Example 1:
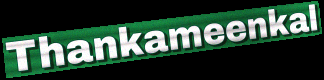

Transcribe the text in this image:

Thankameenkal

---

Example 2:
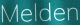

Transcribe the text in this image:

Melden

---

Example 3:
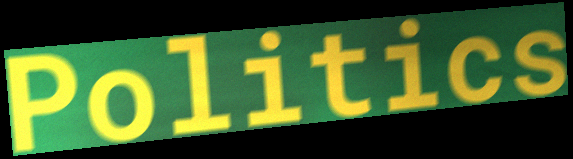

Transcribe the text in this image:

Politics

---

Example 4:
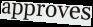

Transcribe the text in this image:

approves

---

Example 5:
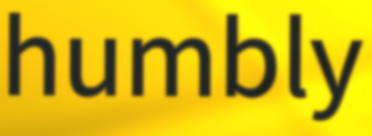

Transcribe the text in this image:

humbly